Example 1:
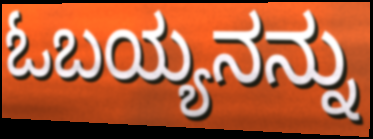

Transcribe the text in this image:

ಓಬಯ್ಯನನ್ನು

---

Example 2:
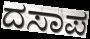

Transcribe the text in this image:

ದಸಾಪ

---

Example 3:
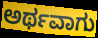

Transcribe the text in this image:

ಅರ್ಥವಾಗು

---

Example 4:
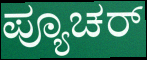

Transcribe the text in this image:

ಪ್ಯೂಚರ್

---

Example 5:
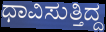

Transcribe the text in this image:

ಧಾವಿಸುತ್ತಿದ್ದ